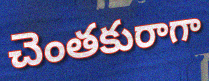
చెంతకురాగా